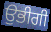
ਉਭੀਗੀ